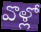
వొళ్లో